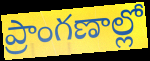
ప్రాంగణాల్లో